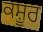
ਕਸ਼ੂਰ